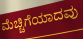
ಮೆಚ್ಚಿಗೆಯಾದವು